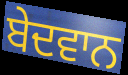
ਬੇਦਵਾਨ